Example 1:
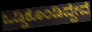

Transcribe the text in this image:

ಒಡ್ಡಿಕೊಂಡಿದ್ದೇವೆ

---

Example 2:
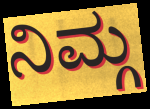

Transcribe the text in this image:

ನಿಮ್ಗ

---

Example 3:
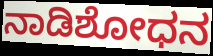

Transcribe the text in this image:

ನಾಡಿಶೋಧನ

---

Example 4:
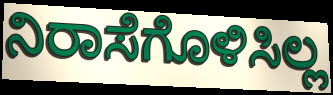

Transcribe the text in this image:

ನಿರಾಸೆಗೊಳಿಸಿಲ್ಲ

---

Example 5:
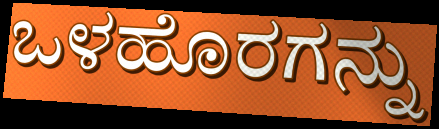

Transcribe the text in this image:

ಒಳಹೊರಗನ್ನು